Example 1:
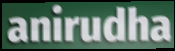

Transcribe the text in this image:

anirudha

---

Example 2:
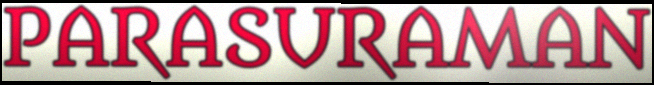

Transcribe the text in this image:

PARASURAMAN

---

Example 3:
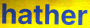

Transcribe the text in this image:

hather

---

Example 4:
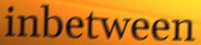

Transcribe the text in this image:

inbetween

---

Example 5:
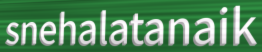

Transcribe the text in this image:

snehalatanaik